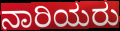
ನಾರಿಯರು